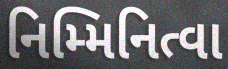
નિમ્મિનિત્વા